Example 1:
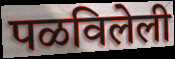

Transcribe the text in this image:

पळविलेली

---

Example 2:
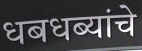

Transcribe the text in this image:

धबधब्यांचे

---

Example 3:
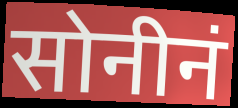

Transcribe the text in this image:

सोनीनं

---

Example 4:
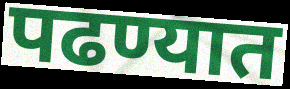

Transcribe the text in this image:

पढण्यात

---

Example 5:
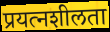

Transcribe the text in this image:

प्रयत्नशीलता